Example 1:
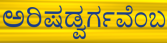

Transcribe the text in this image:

ಅರಿಷಡ್ವರ್ಗವೆಂಬ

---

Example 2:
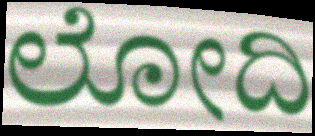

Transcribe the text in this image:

ಲೋದಿ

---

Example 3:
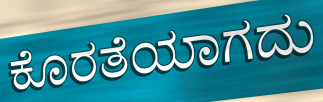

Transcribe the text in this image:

ಕೊರತೆಯಾಗದು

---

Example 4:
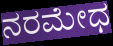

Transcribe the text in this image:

ನರಮೇಧ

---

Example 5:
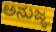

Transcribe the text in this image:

ಅನುಜ್ಞ